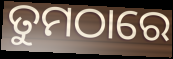
ତୁମଠାରେ